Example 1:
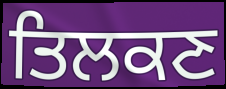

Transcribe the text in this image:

ਤਿਲਕਣ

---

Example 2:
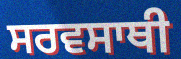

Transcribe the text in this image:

ਸਰਵਸਾਥੀ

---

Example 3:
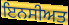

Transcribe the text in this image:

ਇਨਸੀਅਤ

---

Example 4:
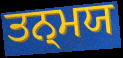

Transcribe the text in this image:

ਤਨ੍ਮਯ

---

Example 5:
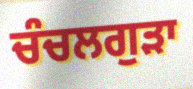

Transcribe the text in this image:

ਚੰਚਲਗੁੜਾ